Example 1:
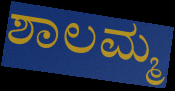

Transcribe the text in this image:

ಶಾಲಮ್ಮ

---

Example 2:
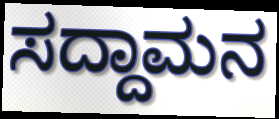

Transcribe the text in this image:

ಸದ್ದಾಮನ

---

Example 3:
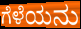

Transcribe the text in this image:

ಗೆಳೆಯನು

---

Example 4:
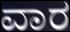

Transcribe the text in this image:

ವಾರ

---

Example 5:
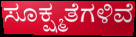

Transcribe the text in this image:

ಸೂಕ್ಷ್ಮತೆಗಳಿವೆ